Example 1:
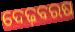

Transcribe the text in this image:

ଦେଢ଼ବରଷ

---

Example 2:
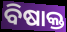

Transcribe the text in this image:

ବିଷାକ୍ତ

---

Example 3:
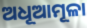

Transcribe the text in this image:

ଅଧୂଆମୂଳା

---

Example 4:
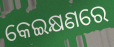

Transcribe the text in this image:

କେଇକ୍ଷଣରେ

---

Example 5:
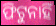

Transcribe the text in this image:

ଫିଟୁନାହିଁ